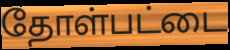
தோள்பட்டை